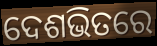
ଦେଶଭିତରେ